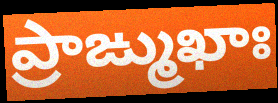
ప్రాఙ్ముఖాః